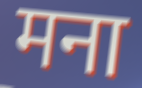
मना